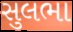
સુલભા